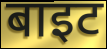
बाइट